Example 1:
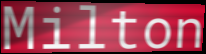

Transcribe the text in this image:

Milton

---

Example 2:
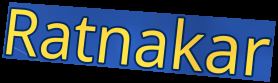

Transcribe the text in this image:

Ratnakar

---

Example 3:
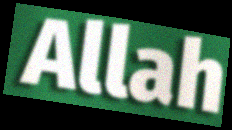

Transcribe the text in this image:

Allah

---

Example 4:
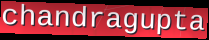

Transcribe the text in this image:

chandragupta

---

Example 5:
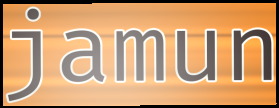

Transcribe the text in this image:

jamun